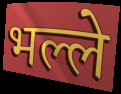
भल्ले